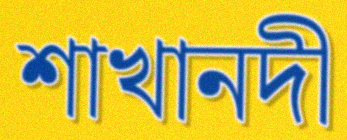
শাখানদী